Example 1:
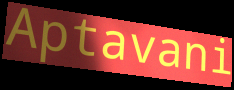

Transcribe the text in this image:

Aptavani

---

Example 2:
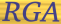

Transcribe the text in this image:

RGA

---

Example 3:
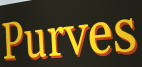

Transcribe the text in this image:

Purves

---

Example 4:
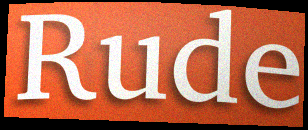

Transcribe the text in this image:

Rude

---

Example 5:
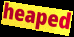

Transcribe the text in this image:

heaped